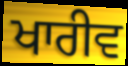
ਖਾਰੀਵ